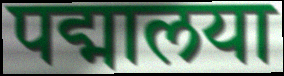
पद्मालया